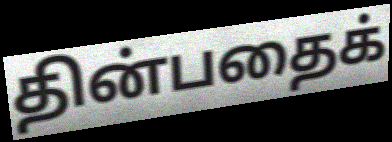
தின்பதைக்